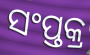
ସଂପ୍ତକ୍ର